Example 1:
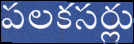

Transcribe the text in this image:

పలకసర్లు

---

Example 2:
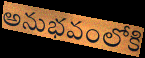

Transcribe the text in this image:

అనుభవంలోకి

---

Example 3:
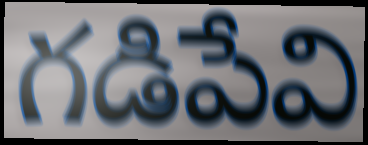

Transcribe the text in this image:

గడిపేవి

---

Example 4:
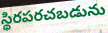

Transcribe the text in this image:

స్థిరపరచబడును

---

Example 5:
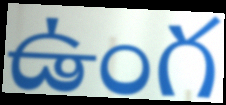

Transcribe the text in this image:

ఉంగ